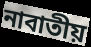
নাবাতীয়